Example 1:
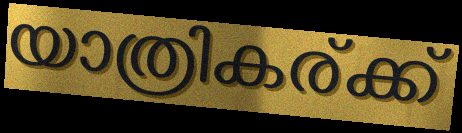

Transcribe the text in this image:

യാത്രികര്ക്ക്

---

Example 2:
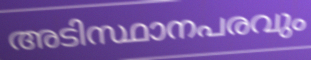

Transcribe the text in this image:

അടിസ്ഥാനപരവും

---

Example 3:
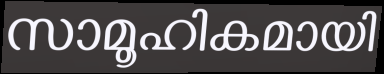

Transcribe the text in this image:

സാമൂഹികമായി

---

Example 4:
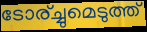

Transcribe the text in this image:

ടോര്ച്ചുമെടുത്ത്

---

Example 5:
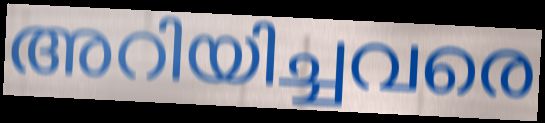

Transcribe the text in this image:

അറിയിച്ചവരെ